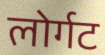
लोर्गट